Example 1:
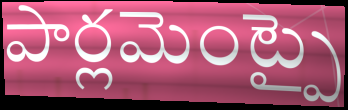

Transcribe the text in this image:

పార్లమెంట్పై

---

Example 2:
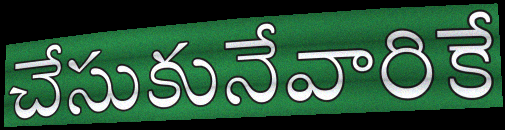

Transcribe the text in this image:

చేసుకునేవారికే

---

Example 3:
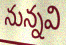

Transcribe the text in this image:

నున్నవి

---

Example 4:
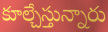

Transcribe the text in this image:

కూల్చేస్తున్నారు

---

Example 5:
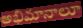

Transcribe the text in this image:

అభిమానాలూ